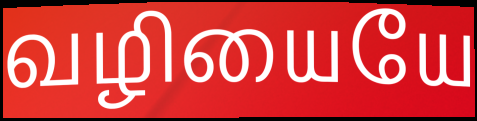
வழியையே